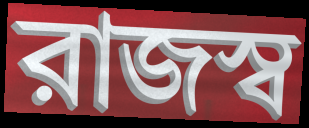
রাজস্ব